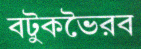
বটুকভৈরব